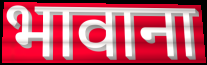
भावाना